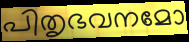
പിതൃഭവനമോ